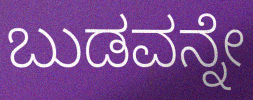
ಬುಡವನ್ನೇ